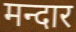
मन्दार